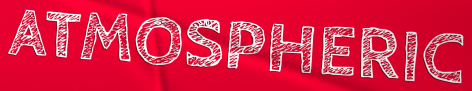
ATMOSPHERIC